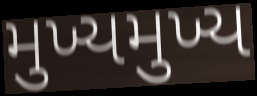
મુખ્યમુખ્ય